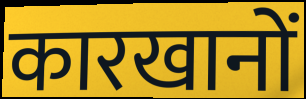
कारखानों